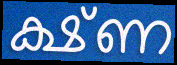
ക്ഷ്ണ